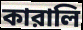
কারালি